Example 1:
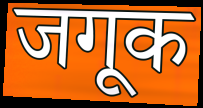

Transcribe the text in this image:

जगूक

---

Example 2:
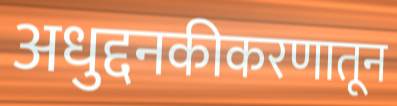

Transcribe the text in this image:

अधुद्दनकीकरणातून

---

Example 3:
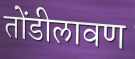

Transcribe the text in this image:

तोंडीलावण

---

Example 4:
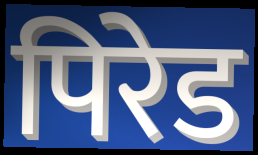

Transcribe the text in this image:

पिरेड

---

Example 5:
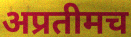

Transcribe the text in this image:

अप्रतीमच